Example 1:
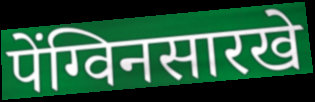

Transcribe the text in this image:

पेंग्विनसारखे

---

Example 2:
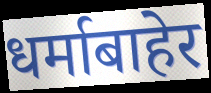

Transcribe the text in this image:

धर्माबाहेर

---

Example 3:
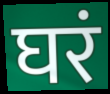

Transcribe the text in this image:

घरं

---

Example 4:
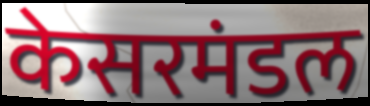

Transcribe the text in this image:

केसरमंडल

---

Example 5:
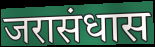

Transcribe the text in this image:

जरासंधास